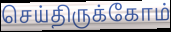
செய்திருக்கோம்